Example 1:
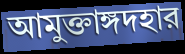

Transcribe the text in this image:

আমুক্তাঙ্গদহার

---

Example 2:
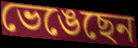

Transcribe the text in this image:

ভেঙেছেন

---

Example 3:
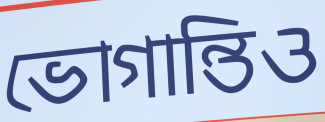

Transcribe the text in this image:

ভোগান্তিও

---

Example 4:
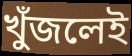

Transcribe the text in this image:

খুঁজলেই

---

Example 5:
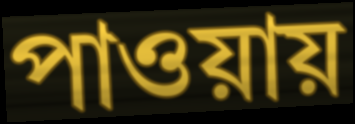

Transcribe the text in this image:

পাওয়ায়